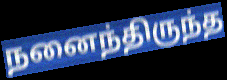
நனைந்திருந்த